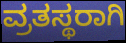
ವ್ರತಸ್ಥರಾಗಿ